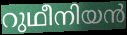
റുഥീനിയൻ